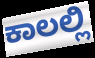
ಕಾಲಲ್ಲಿ